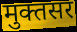
मुक्तसर